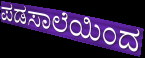
ಪಡಸಾಲೆಯಿಂದ